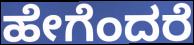
ಹೇಗೆಂದರೆ